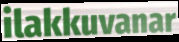
ilakkuvanar